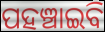
ପହଞ୍ଚାଇବି